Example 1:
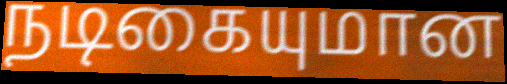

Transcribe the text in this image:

நடிகையுமான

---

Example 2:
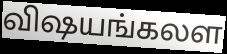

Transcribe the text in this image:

விஷயங்கலள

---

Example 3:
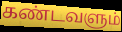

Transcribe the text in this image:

கண்டவளும்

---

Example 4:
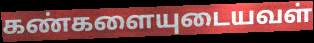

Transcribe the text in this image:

கண்களையுடையவள்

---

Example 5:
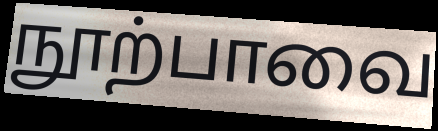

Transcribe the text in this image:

நூற்பாவை